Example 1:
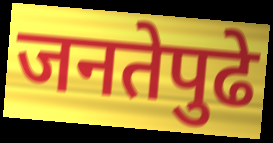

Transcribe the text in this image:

जनतेपुढे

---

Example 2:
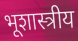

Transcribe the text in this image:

भूशास्त्रीय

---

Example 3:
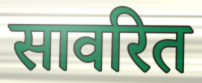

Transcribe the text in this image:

सावरित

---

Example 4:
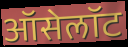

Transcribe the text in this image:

ऑसेलॉट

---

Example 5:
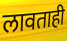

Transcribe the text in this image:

लावताही